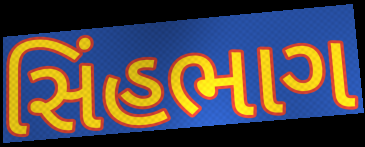
સિંહભાગ